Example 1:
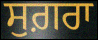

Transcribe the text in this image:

ਸੁਗ਼ਰਾ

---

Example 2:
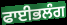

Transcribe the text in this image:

ਫਾਈਭਲੰਗ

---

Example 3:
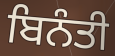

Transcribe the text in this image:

ਬਿਨੰਤੀ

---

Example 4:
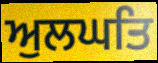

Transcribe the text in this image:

ਅੁਲਘਤਿ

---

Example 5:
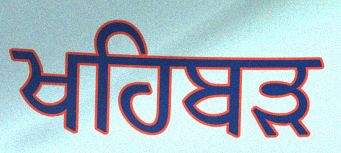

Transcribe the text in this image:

ਖਹਿਬੜ